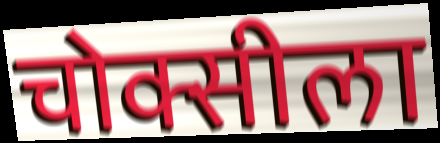
चोक्सीला